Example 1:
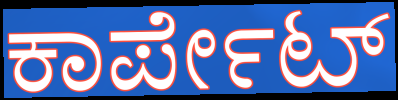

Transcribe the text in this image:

ಕಾರ್ಪೇಟ್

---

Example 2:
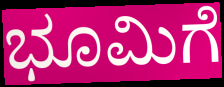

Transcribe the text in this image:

ಭೂಮಿಗೆ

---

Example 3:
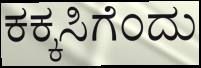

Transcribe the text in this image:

ಕಕ್ಕಸಿಗೆಂದು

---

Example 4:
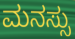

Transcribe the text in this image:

ಮನಸ್ಸು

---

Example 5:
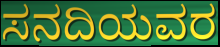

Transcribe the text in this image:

ಸನದಿಯವರ